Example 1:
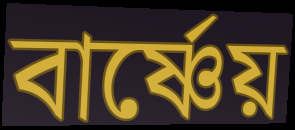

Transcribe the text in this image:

বার্ষ্ণেয়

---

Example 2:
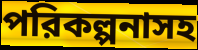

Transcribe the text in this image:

পরিকল্পনাসহ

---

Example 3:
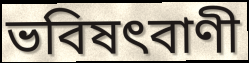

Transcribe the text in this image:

ভবিষৎবাণী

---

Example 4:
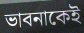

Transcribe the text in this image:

ভাবনাকেই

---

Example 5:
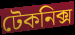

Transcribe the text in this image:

টেকনিক্স